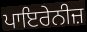
ਪਾਇਰੇਨੀਜ਼